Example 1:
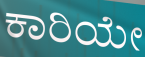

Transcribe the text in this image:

ಕಾರಿಯೇ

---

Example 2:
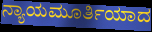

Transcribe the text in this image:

ನ್ಯಾಯಮೂರ್ತಿಯಾದ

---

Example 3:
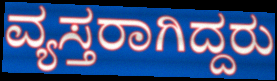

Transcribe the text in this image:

ವ್ಯಸ್ತರಾಗಿದ್ದರು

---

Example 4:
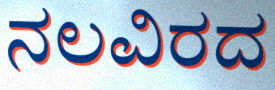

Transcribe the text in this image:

ನಲವಿರದ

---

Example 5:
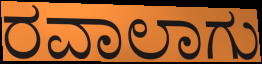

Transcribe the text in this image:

ರವಾಲಾಗು